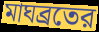
মাঘব্রতের